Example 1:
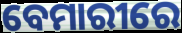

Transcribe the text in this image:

ବେମାରୀରେ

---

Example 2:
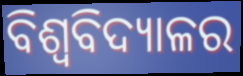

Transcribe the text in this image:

ବିଶ୍ୱବିଦ୍ୟାଳର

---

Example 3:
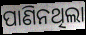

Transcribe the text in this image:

ପାଣିନଥିଲା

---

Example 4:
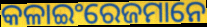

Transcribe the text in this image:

କଳାଇଂରେଜମାନେ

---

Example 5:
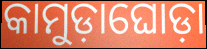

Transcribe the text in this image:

କାମୁଡ଼ାଘୋଡ଼ା